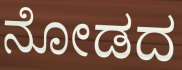
ನೋಡದ